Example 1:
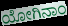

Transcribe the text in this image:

ಯೋಗಿನಾಂ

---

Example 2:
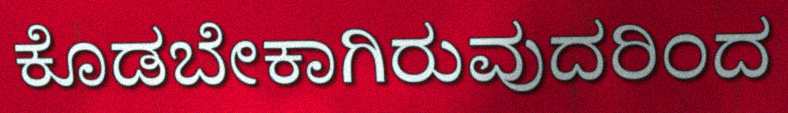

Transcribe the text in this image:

ಕೊಡಬೇಕಾಗಿರುವುದರಿಂದ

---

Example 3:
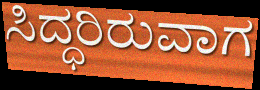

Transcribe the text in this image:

ಸಿದ್ಧರಿರುವಾಗ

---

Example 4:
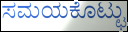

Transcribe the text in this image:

ಸಮಯಕೊಟ್ಟು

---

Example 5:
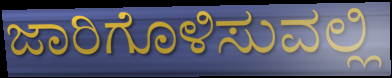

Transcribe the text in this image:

ಜಾರಿಗೊಳಿಸುವಲ್ಲಿ